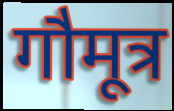
गौमूत्र